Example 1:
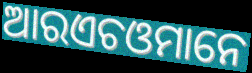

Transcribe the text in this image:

ଆରଏଚଓମାନେ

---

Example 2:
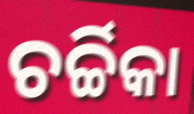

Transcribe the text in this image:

ଚର୍ଚ୍ଚିକା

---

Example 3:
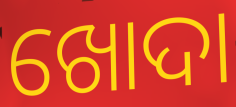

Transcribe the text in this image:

ଖୋଦା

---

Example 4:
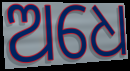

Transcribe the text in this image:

ଅଧେ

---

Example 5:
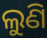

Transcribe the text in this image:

ଲୁଣି